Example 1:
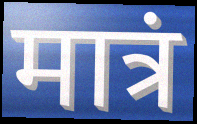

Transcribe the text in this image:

मात्रं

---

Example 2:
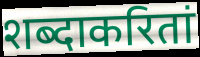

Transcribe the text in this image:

शब्दाकरितां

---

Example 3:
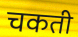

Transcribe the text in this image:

चकती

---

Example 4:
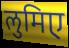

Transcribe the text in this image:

लुमिए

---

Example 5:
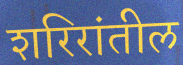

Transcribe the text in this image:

शरिरांतील